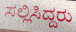
ಸಲ್ಲಿಸಿದ್ದರು